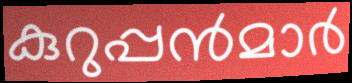
കുറുപ്പൻമാർ